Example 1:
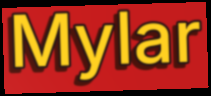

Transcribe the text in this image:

Mylar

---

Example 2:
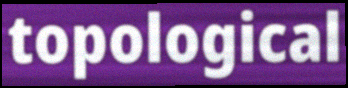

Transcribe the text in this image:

topological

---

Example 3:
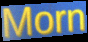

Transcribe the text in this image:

Morn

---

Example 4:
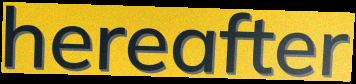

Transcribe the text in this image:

hereafter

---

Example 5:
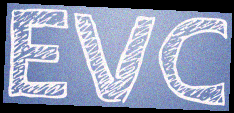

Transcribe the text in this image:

EVC